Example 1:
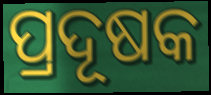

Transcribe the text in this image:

ପ୍ରଦୂଷକ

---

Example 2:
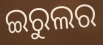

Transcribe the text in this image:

ଇରୁଲର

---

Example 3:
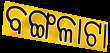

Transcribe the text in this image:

ବଙ୍ଗଳାଟା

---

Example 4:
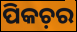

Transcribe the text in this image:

ପିକଚ଼ର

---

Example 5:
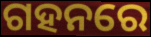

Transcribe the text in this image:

ଗହନରେ